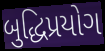
બુદ્ધિપ્રયોગ